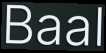
Baal